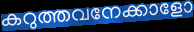
കറുത്തവനേക്കാളോ